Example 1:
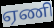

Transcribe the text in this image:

ஏணி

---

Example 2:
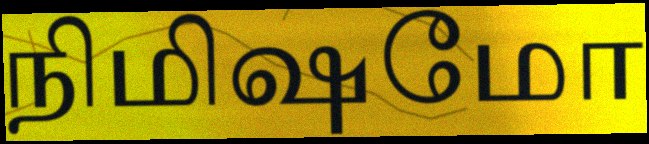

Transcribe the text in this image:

நிமிஷமோ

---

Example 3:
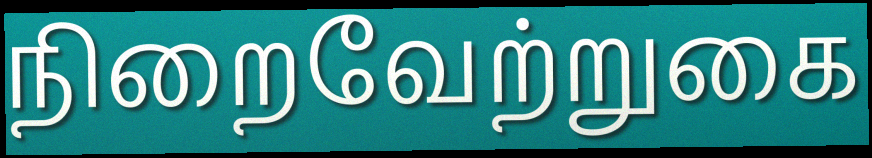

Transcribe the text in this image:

நிறைவேற்றுகை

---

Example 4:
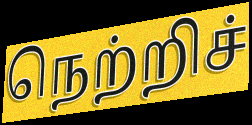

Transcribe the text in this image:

நெற்றிச்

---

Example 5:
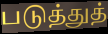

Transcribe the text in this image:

படுத்துத்